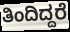
ತಿಂದಿದ್ದರೆ